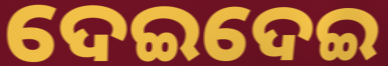
ଦେଇଦେଇ